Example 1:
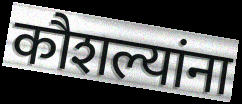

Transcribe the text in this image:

कौशल्यांना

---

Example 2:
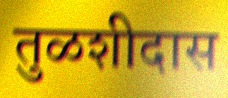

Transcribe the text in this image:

तुळशीदास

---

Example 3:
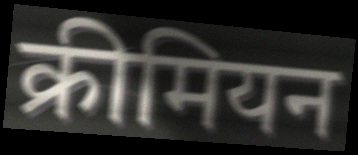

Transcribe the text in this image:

क्रीमियन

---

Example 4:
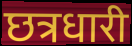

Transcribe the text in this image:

छत्रधारी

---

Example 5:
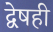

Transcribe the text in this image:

द्वेषही